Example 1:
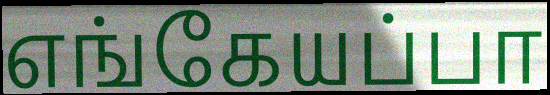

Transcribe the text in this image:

எங்கேயப்பா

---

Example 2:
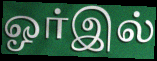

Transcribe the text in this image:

ஓர்இல்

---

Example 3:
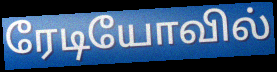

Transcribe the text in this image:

ரேடியோவில்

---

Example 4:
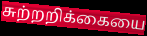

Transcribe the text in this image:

சுற்றறிக்கையை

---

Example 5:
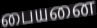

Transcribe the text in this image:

பையனை